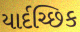
યાર્દચ્છિક